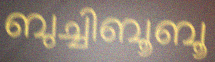
ബുച്ചിബൂബൂ